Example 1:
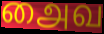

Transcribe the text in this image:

அைவ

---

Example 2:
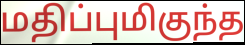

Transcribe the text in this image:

மதிப்புமிகுந்த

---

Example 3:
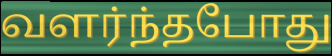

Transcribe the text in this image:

வளர்ந்தபோது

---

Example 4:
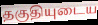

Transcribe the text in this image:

தகுதியுடைய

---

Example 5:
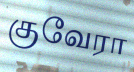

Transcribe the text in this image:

குவேரா